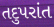
તદુપરાંત